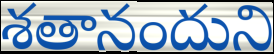
శతానందుని